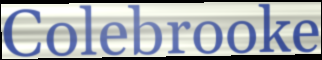
Colebrooke